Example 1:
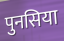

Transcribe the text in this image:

पुनसिया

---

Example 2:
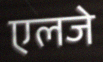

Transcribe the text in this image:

एलजे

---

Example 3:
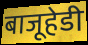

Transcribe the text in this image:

बाजूहेडी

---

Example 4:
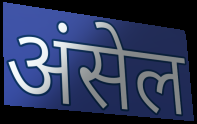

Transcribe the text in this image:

अंसेल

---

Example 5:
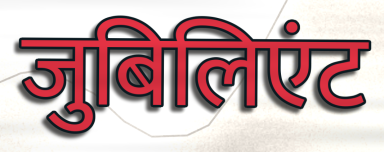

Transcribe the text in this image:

जुबिलिएंट